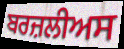
ਬਰਜ਼ਲੀਅਸ